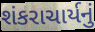
શંકરાચાર્યનું